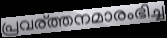
പ്രവര്ത്തനമാരംഭിച്ച